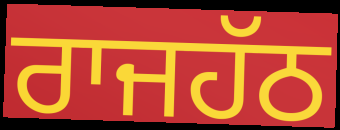
ਰਾਜਹੱਠ